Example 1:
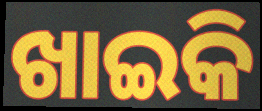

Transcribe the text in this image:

ଖାଇକି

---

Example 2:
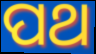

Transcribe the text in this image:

ପଥ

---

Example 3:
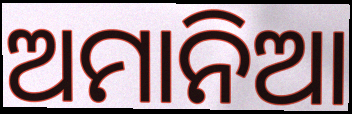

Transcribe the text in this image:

ଅମାନିଆ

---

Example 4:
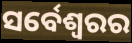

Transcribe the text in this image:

ସର୍ବେଶ୍ୱରର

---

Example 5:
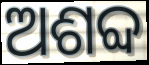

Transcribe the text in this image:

ଅଶବ୍ଦ